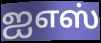
ஐஎஸ்